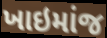
ખાઇમાંજ